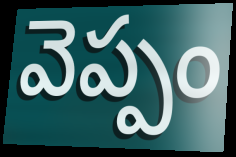
వెప్పం